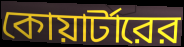
কোয়ার্টারের